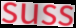
suss